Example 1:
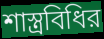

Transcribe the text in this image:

শাস্ত্রবিধির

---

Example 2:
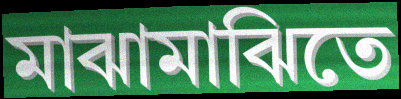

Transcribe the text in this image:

মাঝামাঝিতে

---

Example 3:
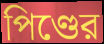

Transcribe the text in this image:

পিণ্ডের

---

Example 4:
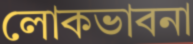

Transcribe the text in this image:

লোকভাবনা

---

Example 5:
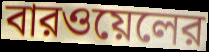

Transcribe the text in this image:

বারওয়েলের